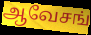
ஆவேசங்